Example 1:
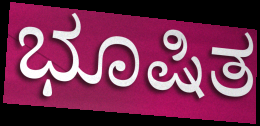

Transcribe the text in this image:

ಭೂಷಿತ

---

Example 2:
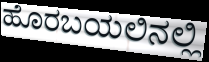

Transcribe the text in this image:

ಹೊರಬಯಲಿನಲ್ಲಿ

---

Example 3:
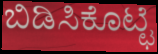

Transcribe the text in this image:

ಬಿಡಿಸಿಕೊಟ್ಟೆ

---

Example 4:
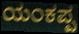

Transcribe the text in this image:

ಯಂಕಪ್ಪ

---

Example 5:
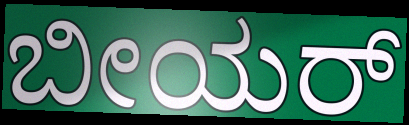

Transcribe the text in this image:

ಬೀಯರ್